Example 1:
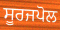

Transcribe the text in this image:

ਸੂਰਜਪੋਲ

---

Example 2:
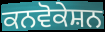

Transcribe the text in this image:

ਕਨਵੋਕੇਸ਼ਨ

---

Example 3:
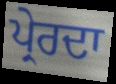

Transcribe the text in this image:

ਪ੍ਰੇਰਦਾ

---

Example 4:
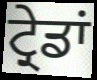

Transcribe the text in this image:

ਟ੍ਰੇਡਾਂ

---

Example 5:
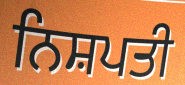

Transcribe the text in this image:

ਨਿਸ਼ਪਤੀ